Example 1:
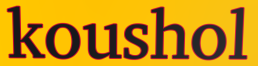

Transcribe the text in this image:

koushol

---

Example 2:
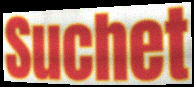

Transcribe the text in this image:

Suchet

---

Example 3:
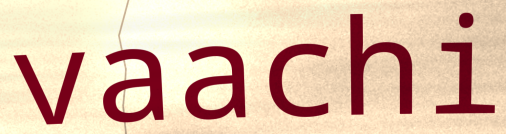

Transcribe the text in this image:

vaachi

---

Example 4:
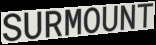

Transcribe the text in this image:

SURMOUNT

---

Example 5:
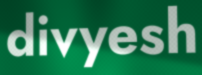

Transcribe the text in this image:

divyesh